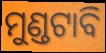
ମୁଣ୍ଡଟାବି